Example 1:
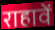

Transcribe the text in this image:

राहावें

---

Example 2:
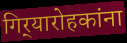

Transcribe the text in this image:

गिर्यारोहकांना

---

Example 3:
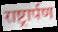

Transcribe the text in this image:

राष्ट्रार्पण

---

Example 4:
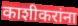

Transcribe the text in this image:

काशीकरांना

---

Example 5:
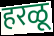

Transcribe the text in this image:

हरळू